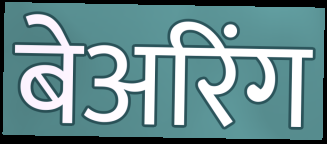
बेअरिंग